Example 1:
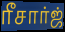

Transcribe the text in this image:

ரீசார்ஜ்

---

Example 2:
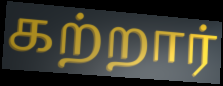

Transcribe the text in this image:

கற்றார்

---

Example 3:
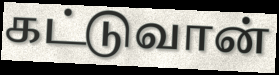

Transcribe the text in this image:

கட்டுவான்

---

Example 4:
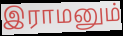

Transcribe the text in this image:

இராமனும்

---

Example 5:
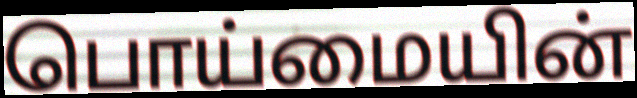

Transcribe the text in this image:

பொய்மையின்